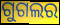
ଗୁଗଲର